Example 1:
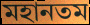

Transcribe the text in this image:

মহানতম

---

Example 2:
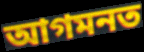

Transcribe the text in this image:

আগমনত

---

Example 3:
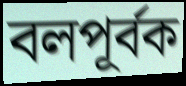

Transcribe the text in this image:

বলপূৰ্বক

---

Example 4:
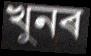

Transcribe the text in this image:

খুনৰ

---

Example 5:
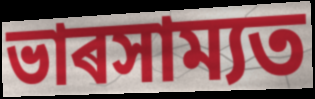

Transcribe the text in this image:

ভাৰসাম্যত